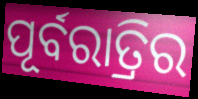
ପୂର୍ବରାତ୍ରିର